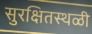
सुरक्षितस्थळी